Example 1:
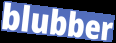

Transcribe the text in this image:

blubber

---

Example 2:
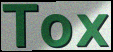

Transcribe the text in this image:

Tox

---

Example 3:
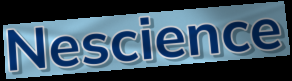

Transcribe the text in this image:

Nescience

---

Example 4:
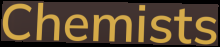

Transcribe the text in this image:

Chemists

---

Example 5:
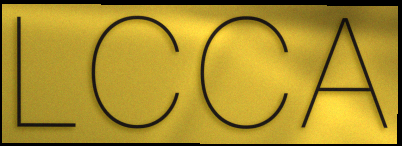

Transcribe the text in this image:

LCCA